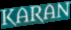
KARAN